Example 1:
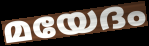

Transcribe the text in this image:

മയേദം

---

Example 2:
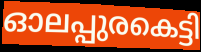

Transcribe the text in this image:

ഓലപ്പുരകെട്ടി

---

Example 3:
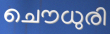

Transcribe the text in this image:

ചൌധുരി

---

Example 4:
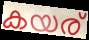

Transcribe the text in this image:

കയര്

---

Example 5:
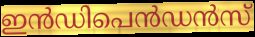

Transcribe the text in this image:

ഇൻഡിപെൻഡൻസ്